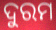
ଦୁରମ